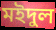
মইদুল